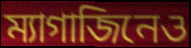
ম্যাগাজিনেও